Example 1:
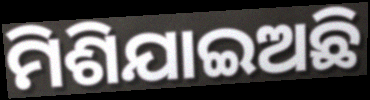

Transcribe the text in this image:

ମିଶିଯାଇଅଛି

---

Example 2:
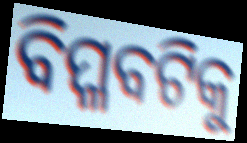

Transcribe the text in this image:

ବିପ୍ଳବଟିକୁ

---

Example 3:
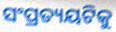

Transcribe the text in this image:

ସଂପ୍ରତ୍ୟୟଟିକୁ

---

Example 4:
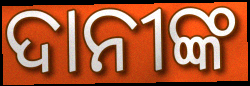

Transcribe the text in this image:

ଦାନୀଙ୍କ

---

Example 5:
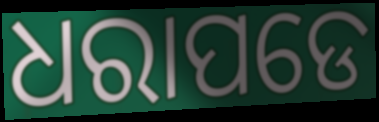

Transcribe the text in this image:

ଧରାପଡେ